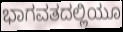
ಭಾಗವತದಲ್ಲಿಯೂ